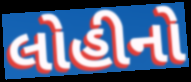
લોહીનો